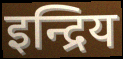
इन्द्रिय